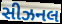
સીઝનલ